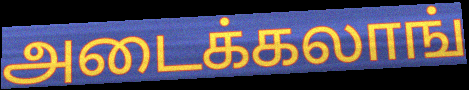
அடைக்கலாங்